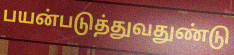
பயன்படுத்துவதுண்டு